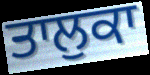
ਤਾਲੁਕਾ